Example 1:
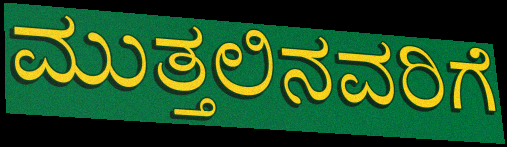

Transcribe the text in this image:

ಮುತ್ತಲಿನವರಿಗೆ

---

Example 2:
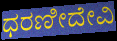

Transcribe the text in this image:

ಧರಣೀದೇವಿ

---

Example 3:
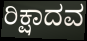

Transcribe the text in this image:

ರಿಕ್ಷಾದವ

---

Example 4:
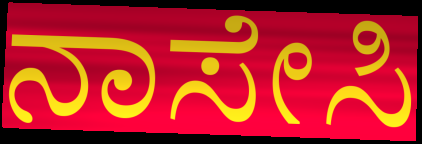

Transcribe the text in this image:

ನಾಸೇಸಿ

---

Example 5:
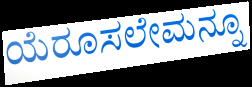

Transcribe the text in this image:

ಯೆರೂಸಲೇಮನ್ನೂ